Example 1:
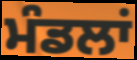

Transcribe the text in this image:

ਮੰਡਲਾਂ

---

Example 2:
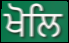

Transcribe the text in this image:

ਖੋਲਿ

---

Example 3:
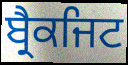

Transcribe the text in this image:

ਬ੍ਰੈਕਜਿਟ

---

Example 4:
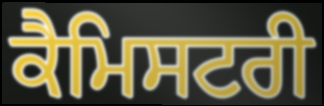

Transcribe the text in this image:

ਕੈਮਿਸਟਰੀ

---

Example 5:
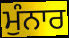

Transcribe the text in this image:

ਮੁੰਨਾਰ